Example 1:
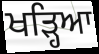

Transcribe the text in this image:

ਖੜ੍ਹਿਆ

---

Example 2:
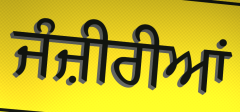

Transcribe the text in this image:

ਜੰਜ਼ੀਰੀਆਂ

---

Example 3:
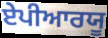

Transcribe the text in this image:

ਏਪੀਆਰਯੂ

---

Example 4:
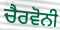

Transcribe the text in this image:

ਚੈਰਵੋਨੀ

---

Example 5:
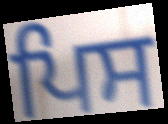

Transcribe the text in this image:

ਪਿਸ